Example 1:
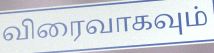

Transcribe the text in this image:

விரைவாகவும்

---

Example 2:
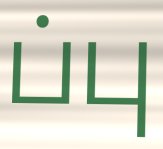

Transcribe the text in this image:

ப்பு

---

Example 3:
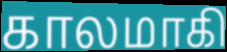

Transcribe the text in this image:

காலமாகி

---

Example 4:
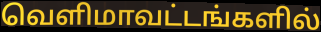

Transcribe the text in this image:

வெளிமாவட்டங்களில்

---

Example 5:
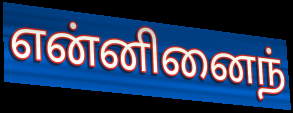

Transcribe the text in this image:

என்னினைந்